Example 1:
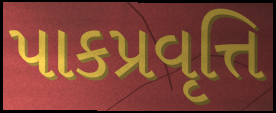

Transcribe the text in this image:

પાકપ્રવૃત્તિ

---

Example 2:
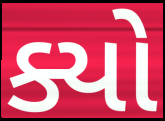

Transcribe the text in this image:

ક્યો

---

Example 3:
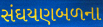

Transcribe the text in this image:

સંઘયણબળના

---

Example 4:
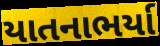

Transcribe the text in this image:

યાતનાભર્યા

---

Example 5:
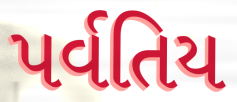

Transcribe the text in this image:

પર્વતિય